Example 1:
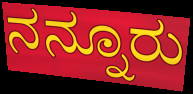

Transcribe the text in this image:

ನನ್ನೂರು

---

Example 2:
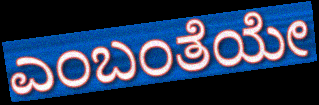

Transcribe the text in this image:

ಎಂಬಂತೆಯೇ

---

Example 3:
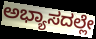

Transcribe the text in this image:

ಅಭ್ಯಾಸದಲ್ಲೇ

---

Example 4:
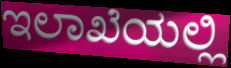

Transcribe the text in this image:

ಇಲಾಖೆಯಲ್ಲಿ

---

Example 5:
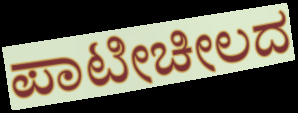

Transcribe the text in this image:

ಪಾಟೀಚೀಲದ